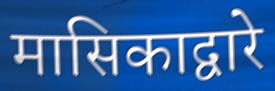
मासिकाद्वारे